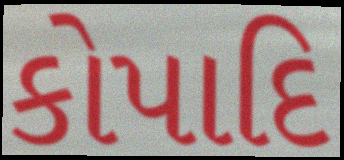
કોપાદિ